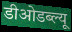
डीओडब्ल्यू